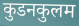
कुडनकुलम